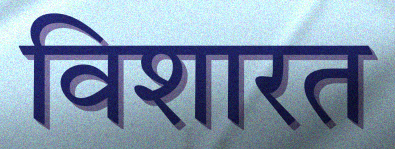
विशारत